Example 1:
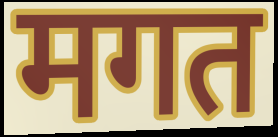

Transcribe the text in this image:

मगत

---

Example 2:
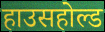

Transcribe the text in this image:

हाउसहोल्ड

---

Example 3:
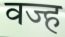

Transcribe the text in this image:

वज्ह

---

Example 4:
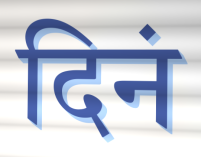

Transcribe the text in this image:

दिनं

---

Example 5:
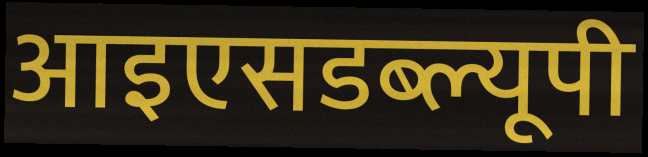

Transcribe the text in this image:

आइएसडब्ल्यूपी